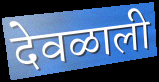
देवळाली